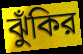
ঝুঁকির